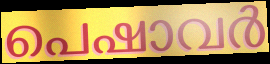
പെഷാവർ